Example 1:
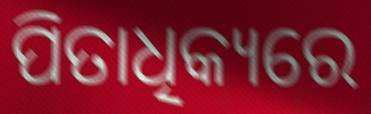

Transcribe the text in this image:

ପିତାଧିକ୍ୟରେ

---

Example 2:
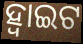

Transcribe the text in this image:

ହ୍ବାଇଟ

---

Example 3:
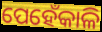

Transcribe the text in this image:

ପେହେଁକାଳି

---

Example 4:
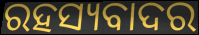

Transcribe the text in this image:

ରହସ୍ୟବାଦର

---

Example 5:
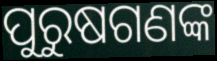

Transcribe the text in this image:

ପୁରୁଷଗଣଙ୍କ